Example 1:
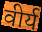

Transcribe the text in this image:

वीर्य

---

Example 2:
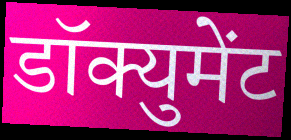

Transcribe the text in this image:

डॉक्युमेंट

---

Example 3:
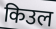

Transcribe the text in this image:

किउल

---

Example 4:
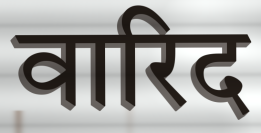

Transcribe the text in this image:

वारिद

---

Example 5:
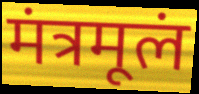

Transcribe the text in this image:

मंत्रमूलं